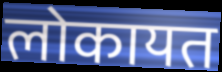
लोकायत